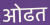
ओढत